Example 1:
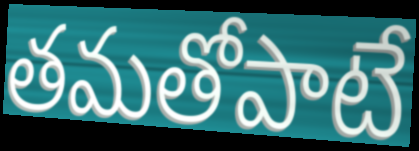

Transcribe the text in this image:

తమతోపాటే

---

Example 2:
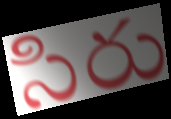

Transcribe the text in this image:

సిరు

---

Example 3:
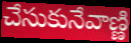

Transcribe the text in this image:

చేసుకునేవాణ్ణి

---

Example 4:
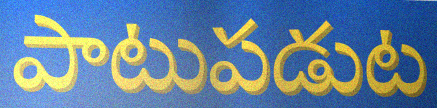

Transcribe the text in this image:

పాటుపడుట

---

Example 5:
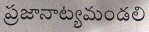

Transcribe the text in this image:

ప్రజానాట్యమండలి